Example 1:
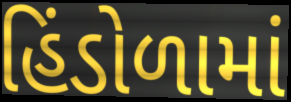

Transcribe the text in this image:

હિંડોળામાં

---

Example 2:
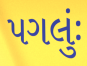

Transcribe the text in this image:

પગલુંઃ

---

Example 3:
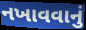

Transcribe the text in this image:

નખાવવાનું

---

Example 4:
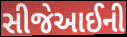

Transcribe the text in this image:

સીજેઆઈની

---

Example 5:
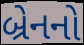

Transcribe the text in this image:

બ્રેનનો